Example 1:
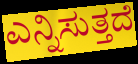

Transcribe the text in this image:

ಎನ್ನಿಸುತ್ತದೆ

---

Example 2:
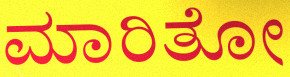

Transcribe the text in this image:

ಮಾರಿತೋ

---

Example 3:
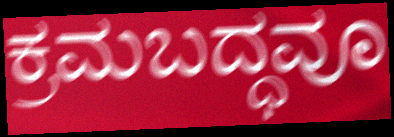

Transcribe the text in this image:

ಕ್ರಮಬದ್ಧವೂ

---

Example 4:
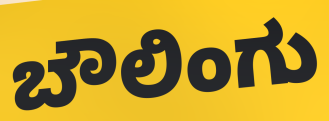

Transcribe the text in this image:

ಬೌಲಿಂಗು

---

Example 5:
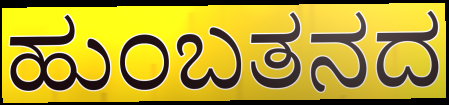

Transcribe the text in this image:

ಹುಂಬತನದ